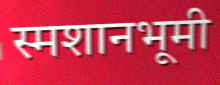
स्मशानभूमी